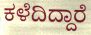
ಕಳೆದಿದ್ದಾರೆ